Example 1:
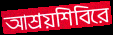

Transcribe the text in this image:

আশ্রয়শিবিরে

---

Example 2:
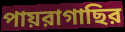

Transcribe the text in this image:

পায়রাগাছির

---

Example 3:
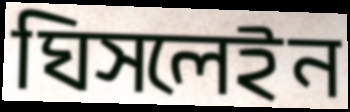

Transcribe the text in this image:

ঘিসলেইন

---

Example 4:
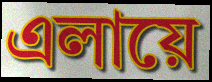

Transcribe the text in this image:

এলায়ে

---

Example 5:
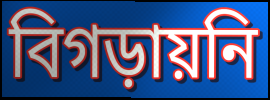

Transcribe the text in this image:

বিগড়ায়নি